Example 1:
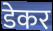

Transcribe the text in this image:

डेकर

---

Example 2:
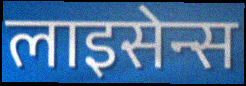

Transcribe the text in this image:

लाइसेन्स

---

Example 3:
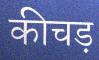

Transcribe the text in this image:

कीचड़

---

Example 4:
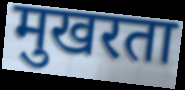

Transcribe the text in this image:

मुखरता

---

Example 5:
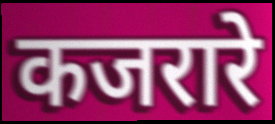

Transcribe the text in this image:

कजरारे